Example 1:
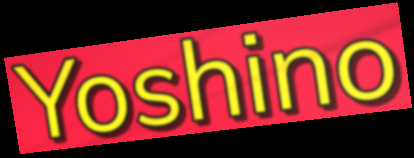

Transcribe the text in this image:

Yoshino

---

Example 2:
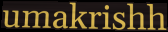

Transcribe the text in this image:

umakrishh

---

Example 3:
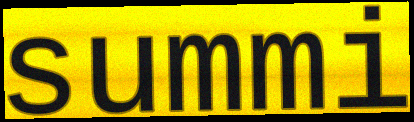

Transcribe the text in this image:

summi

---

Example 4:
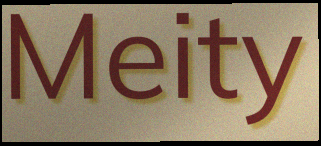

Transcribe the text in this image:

Meity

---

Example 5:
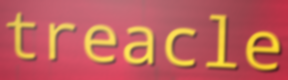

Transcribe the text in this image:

treacle